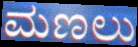
ಮಣಲು